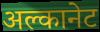
अल्कानेट